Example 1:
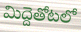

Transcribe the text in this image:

మిద్దెతోటలో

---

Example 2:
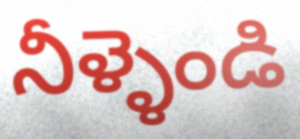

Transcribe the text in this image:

నీళ్ళెండి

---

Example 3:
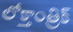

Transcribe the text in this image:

లోక్తాంత్రిక్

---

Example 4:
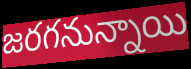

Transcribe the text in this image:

జరగనున్నాయి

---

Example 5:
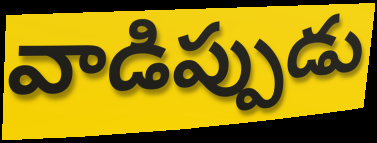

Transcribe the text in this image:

వాడిప్పుడు